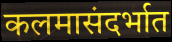
कलमासंदर्भात